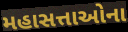
મહાસત્તાઓના